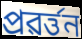
প্ৰৱৰ্ত্তন